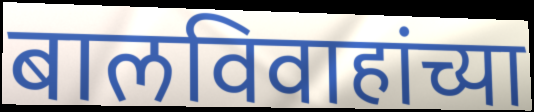
बालविवाहांच्या